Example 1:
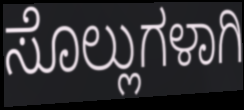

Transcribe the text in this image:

ಸೊಲ್ಲುಗಳಾಗಿ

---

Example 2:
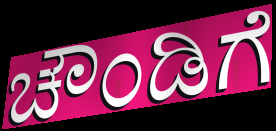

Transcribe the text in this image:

ಚೌಂಡಿಗೆ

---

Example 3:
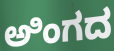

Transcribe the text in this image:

ಅಿಂಗದ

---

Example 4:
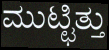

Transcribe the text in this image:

ಮುಟ್ಟಿತ್ತು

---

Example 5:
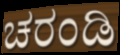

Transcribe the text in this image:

ಚರಂಡಿ